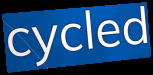
cycled